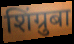
शिंग्रुबा